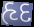
હૃદ